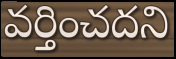
వర్తించదని